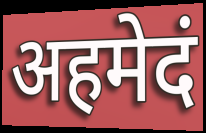
अहमेदं